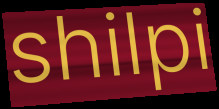
shilpi